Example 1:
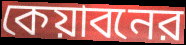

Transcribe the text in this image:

কেয়াবনের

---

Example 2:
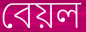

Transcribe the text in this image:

বেয়ল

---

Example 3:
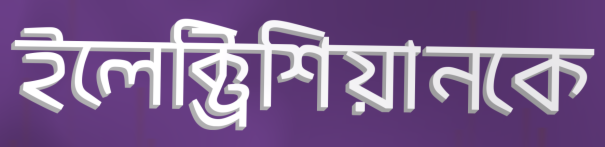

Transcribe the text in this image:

ইলেক্ট্রিশিয়ানকে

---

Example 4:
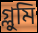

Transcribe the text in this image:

গ্লুমি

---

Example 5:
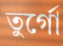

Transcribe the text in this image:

তুর্গো